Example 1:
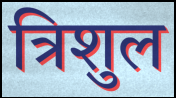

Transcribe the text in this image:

त्रिशुल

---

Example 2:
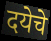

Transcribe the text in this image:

दयेचे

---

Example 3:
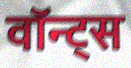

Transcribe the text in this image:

वॉन्ट्स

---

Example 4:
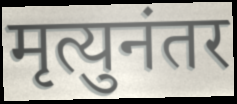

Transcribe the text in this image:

मृत्युनंतर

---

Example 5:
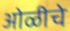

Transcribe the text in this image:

ओळीचे